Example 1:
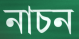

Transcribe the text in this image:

নাচন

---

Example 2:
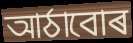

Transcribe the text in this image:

আঠাবোৰ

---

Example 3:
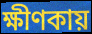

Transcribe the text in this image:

ক্ষীণকায়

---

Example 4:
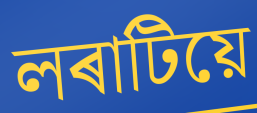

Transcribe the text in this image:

লৰাটিয়ে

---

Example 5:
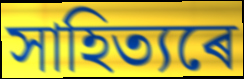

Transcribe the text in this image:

সাহিত্যৰে